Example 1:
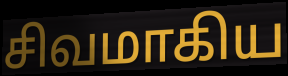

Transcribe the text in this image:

சிவமாகிய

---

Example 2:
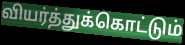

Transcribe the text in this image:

வியர்த்துக்கொட்டும்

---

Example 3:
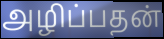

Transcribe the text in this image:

அழிப்பதன்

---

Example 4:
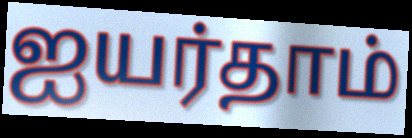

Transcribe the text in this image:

ஐயர்தாம்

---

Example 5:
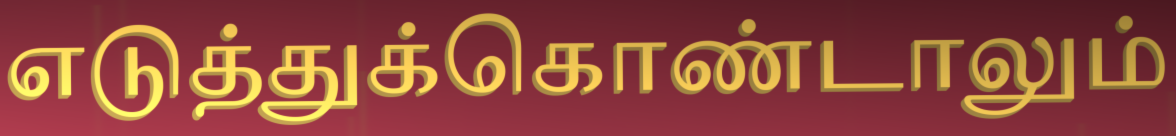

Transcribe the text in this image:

எடுத்துக்கொண்டாலும்